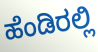
ಹೆಂಡಿರಲ್ಲಿ